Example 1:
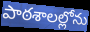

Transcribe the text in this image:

పాఠశాలల్లోను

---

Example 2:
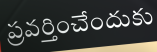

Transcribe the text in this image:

ప్రవర్తించేందుకు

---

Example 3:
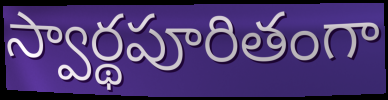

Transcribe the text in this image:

స్వార్థపూరితంగా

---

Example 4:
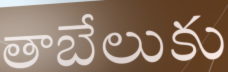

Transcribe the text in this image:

తాబేలుకు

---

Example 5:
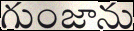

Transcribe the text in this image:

గుంజాను